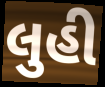
લુહી